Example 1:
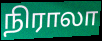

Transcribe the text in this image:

நிராலா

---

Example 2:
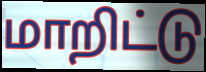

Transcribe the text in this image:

மாறிட்டு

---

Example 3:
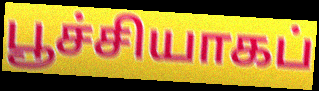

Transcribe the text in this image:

பூச்சியாகப்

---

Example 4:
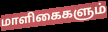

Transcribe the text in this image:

மாளிகைகளும்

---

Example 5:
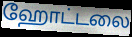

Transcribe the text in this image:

ஹோட்டலை